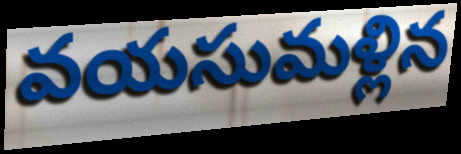
వయసుమళ్లిన